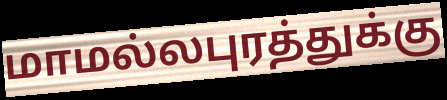
மாமல்லபுரத்துக்கு